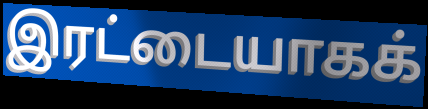
இரட்டையாகக்